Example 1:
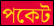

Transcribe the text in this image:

পকেট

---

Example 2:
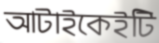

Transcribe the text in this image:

আটাইকেইটি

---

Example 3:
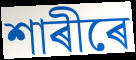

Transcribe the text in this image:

শাৰীৰে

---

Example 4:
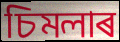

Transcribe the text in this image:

চিমলাৰ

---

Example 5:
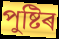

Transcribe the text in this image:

পুষ্টিৰ